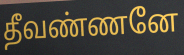
தீவண்ணனே